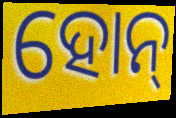
ହୋନ୍